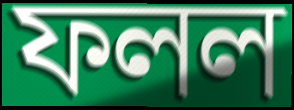
ফলল